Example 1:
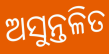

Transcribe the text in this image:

ଅସୁନ୍ତଳିତ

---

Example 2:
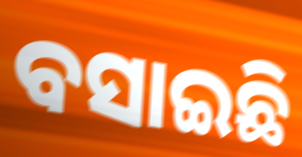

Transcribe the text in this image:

ବସାଇଛି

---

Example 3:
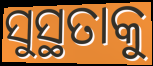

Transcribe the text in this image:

ସୁସ୍ଥତାକୁ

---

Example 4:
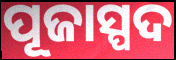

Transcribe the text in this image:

ପୂଜାସ୍ପଦ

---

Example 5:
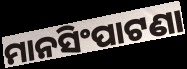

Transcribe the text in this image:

ମାନସିଂପାଟଣା